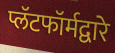
प्लॅटफॉर्मद्वारे